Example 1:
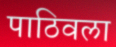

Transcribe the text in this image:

पाठिवला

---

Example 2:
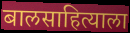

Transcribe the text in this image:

बालसाहित्याला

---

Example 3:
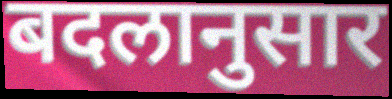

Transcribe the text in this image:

बदलानुसार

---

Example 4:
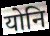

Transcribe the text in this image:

योनि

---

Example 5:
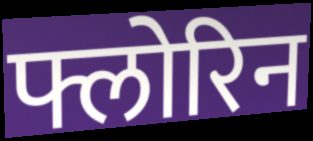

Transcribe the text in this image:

फ्लोरिन